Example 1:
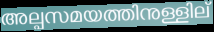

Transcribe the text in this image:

അല്പസമയത്തിനുള്ളില്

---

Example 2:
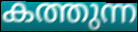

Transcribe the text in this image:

കത്തുന്ന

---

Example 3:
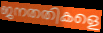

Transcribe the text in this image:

ജനതതികളെ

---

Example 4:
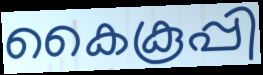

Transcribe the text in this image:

കൈകൂപ്പി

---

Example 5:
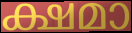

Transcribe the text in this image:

ക്ഷമാ